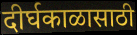
दीर्घकाळासाठी